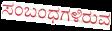
ಸಂಬಂಧಗಳಿರುವ